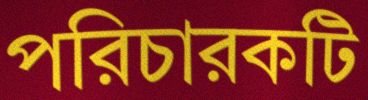
পরিচারকটি